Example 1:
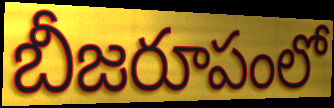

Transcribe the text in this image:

బీజరూపంలో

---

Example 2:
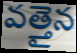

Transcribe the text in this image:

వత్తైన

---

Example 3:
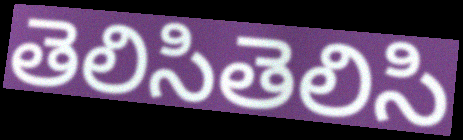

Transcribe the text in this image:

తెలిసితెలిసి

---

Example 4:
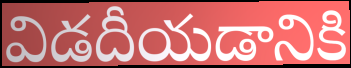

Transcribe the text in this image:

విడదీయడానికి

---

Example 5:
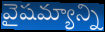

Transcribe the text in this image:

వైషమ్యాన్ని